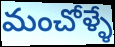
మంచోళ్ళే